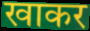
खाकर